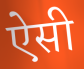
ऐसी